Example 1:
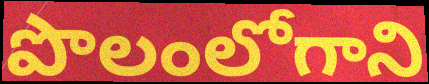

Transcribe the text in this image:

పొలంలోగాని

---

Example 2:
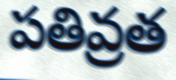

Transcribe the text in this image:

పతివ్రత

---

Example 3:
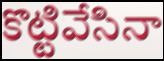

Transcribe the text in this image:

కొట్టివేసినా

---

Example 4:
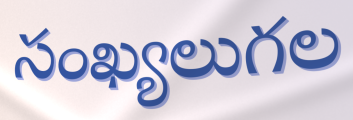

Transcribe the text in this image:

సంఖ్యలుగల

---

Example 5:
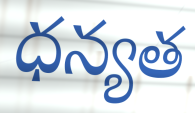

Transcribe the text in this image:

ధన్యత